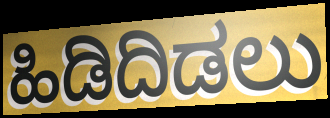
ಹಿಡಿದಿಡಲು